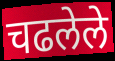
चढलेले